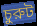
চুরুট